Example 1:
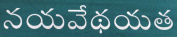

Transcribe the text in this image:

నయవేథయత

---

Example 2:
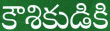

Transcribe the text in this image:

కౌశికుడికి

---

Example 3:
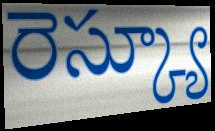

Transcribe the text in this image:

రెస్క్యూ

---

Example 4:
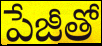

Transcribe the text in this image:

పేజీతో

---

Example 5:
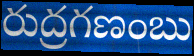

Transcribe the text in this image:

రుద్రగణంబు